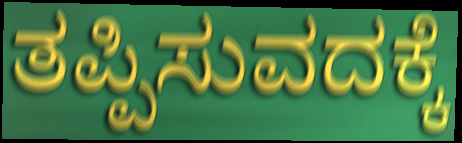
ತಪ್ಪಿಸುವದಕ್ಕೆ